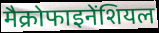
मैक्रोफाइनेंशियल